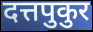
दत्तपुकुर